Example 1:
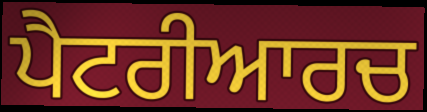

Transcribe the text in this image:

ਪੈਟਰੀਆਰਚ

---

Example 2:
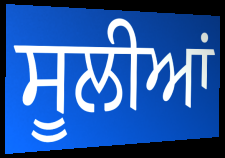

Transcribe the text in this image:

ਸੂਲੀਆਂ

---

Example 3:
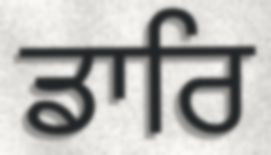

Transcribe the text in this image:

ਡਾਰਿ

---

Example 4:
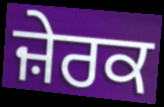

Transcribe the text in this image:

ਜ਼ੇਰਕ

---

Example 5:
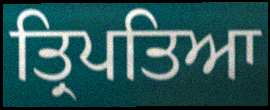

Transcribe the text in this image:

ਤ੍ਰਿਪਤਿਆ